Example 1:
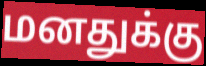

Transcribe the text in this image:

மனதுக்கு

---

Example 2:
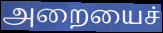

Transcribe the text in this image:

அறையைச்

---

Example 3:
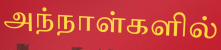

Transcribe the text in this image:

அந்நாள்களில்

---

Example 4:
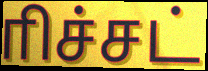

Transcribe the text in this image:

ரிச்சட்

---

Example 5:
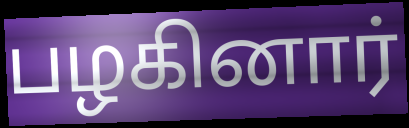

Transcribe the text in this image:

பழகினார்